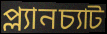
প্ল্যানচ্যাট